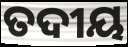
ତଦୀୟ